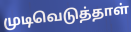
முடிவெடுத்தாள்